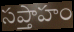
సప్తాహం